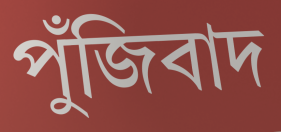
পুঁজিবাদ